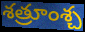
శత్రూంశ్చ